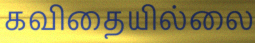
கவிதையில்லை